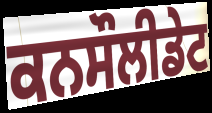
ਕਨਸੌਲੀਡੇਟ